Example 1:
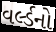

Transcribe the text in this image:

વર્લ્ડનો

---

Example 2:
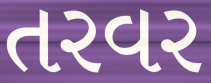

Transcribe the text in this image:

તરવર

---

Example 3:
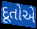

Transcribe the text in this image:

દૂતોએ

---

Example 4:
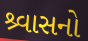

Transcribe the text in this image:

શ્ર્વાસનો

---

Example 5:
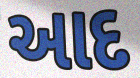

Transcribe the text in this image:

આદ